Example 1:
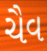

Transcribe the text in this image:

ચૈવ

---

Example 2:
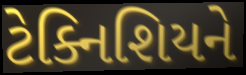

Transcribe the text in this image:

ટેક્નિશિયને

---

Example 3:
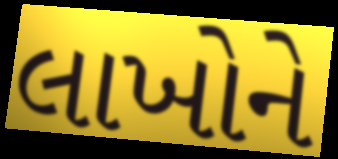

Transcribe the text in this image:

લાખોને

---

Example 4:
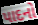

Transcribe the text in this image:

પાદનો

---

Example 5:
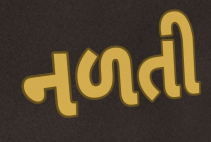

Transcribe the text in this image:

નળતી